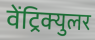
वेंट्रिक्युलर